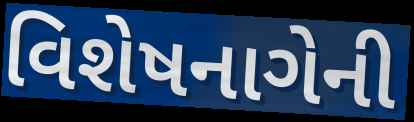
વિશેષનાગેની